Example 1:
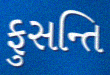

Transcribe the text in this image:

ફુસન્તિ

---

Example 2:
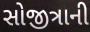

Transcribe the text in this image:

સોજીત્રાની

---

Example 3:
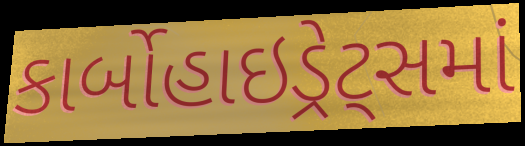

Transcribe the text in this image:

કાર્બોહાઇડ્રેટ્સમાં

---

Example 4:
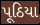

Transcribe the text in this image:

પૂઠિયા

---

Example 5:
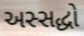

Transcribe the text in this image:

અસ્સદ્ધો